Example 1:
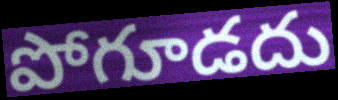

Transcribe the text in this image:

పోగూడదు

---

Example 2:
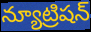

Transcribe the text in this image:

న్యూట్రిషన్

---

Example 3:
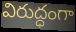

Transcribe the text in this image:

విరుద్ధంగా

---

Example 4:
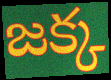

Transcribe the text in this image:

జక్క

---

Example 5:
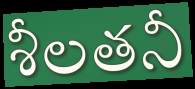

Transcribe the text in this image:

శీలతనీ